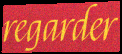
regarder